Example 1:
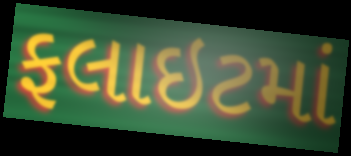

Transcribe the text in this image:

ફલાઇટમાં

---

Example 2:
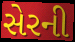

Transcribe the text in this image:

સેરની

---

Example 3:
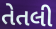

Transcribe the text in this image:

તેતલી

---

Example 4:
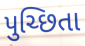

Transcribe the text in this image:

પુચ્છિતા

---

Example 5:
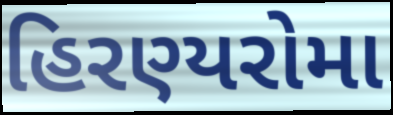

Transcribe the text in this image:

હિરણ્યરોમા